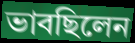
ভাবছিলেন